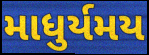
માધુર્યમય